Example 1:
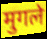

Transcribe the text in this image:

मुगले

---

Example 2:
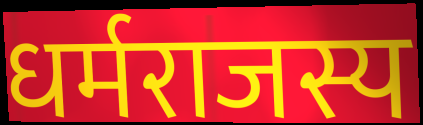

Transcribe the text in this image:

धर्मराजस्य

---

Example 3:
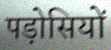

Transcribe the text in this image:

पड़ोसियों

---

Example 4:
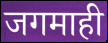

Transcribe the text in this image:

जगमाही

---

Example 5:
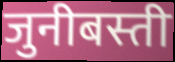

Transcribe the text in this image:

जुनीबस्ती